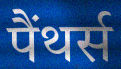
पैंथर्स